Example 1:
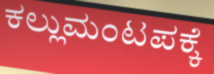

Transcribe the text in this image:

ಕಲ್ಲುಮಂಟಪಕ್ಕೆ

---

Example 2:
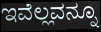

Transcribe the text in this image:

ಇವೆಲ್ಲವನ್ನೂ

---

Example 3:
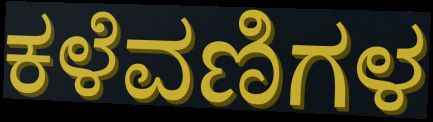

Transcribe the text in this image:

ಕಳೆವಣಿಗಳ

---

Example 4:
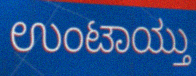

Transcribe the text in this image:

ಉಂಟಾಯ್ತು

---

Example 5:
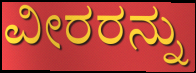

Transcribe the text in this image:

ವೀರರನ್ನು